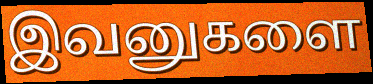
இவனுகளை